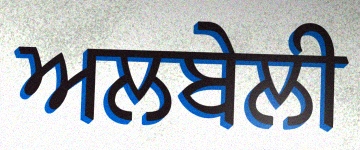
ਅਲਬੇਲੀ